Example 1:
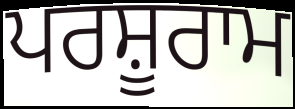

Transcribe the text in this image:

ਪਰਸ਼ੂਰਾਮ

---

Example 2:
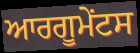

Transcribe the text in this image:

ਆਰਗੂਮੇੰਟਸ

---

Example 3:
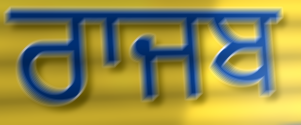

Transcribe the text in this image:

ਰਾਜਬ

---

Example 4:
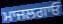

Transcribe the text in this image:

ਮਾਜਲਗਾਓਂ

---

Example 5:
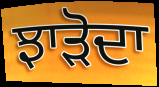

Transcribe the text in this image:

ਝਾੜੋਦਾ